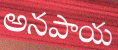
అనపాయ